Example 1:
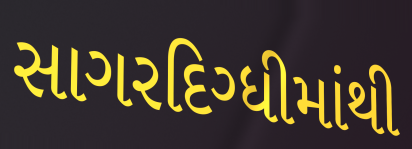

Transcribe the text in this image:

સાગરદિગ્ધીમાંથી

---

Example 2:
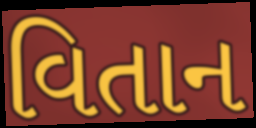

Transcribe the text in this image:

વિતાન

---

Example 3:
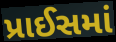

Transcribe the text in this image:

પ્રાઈસમાં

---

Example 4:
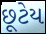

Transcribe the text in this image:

છૂટેય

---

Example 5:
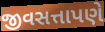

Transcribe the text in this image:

જીવસત્તાપણે